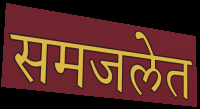
समजलेत